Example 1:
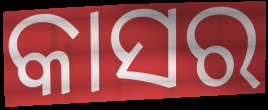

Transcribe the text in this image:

କାସର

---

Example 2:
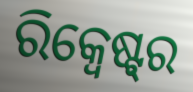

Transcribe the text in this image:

ରିକ୍ୱେଷ୍ଟ୍‌ର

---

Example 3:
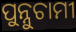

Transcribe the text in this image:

ପୁନ୍ନୁଚାମୀ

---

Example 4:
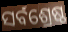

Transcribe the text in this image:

ସର୍ବଶ୍ରେଷ୍ଠ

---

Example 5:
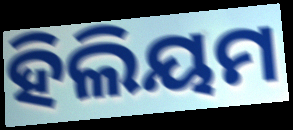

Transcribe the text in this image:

ହିଲିୟମ